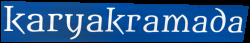
karyakramada